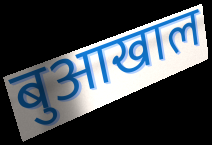
बुआखाल